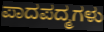
ಪಾದಪದ್ಮಗಳು